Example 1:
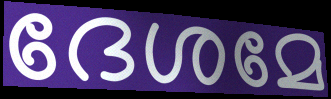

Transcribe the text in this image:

ദേശമേ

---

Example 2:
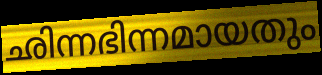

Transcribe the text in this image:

ഛിന്നഭിന്നമായതും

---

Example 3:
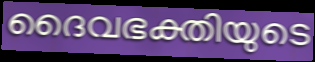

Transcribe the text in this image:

ദൈവഭക്തിയുടെ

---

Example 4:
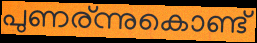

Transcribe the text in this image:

പുണര്ന്നുകൊണ്ട്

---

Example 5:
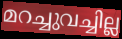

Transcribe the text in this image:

മറച്ചുവച്ചില്ല